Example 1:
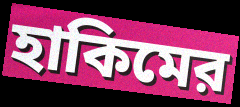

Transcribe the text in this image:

হাকিমের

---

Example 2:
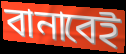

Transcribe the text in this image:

বানাবেই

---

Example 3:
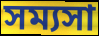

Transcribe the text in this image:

সম্যসা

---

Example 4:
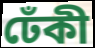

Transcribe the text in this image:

ঢেঁকী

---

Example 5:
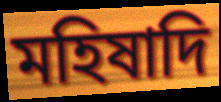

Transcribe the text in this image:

মহিষাদি